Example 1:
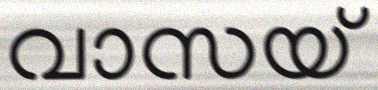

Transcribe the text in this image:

വാസയ്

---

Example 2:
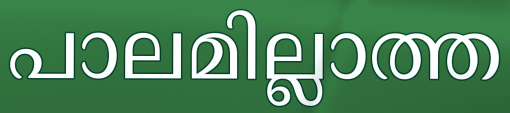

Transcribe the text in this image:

പാലമില്ലാത്ത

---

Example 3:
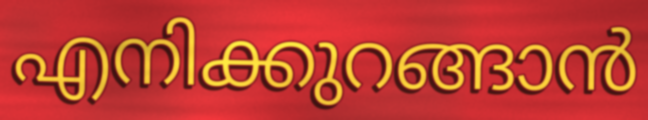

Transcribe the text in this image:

എനിക്കുറങ്ങാൻ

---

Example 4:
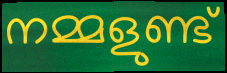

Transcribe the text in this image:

നമ്മളുണ്ട്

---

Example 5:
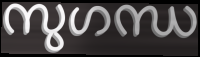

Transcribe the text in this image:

സുഗന്ധ